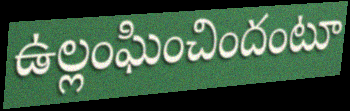
ఉల్లంఘించిందంటూ